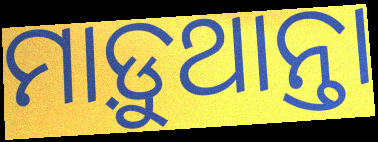
ମାଡ଼ୁଥାନ୍ତା